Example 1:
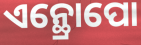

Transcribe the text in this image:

ଏନ୍ଥ୍ରୋପୋ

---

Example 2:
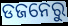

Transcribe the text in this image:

ଡଜନେରୁ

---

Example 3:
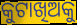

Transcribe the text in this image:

କୁଟାଖିଅକୁ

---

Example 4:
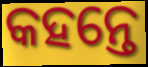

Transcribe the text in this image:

କହନ୍ତେ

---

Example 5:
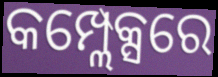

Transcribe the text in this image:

କମ୍ପ୍ଲେକ୍ସରେ